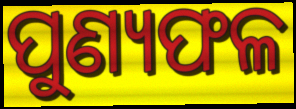
ପୁଣ୍ୟଫଳ